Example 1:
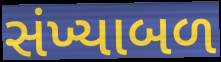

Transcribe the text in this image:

સંખ્યાબળ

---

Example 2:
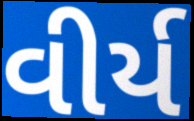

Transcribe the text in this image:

વીર્ય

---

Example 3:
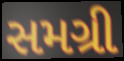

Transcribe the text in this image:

સમગ્રી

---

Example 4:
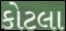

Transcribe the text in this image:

કોટલા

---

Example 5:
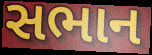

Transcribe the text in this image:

સભાન